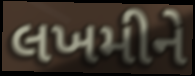
લખમીને